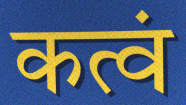
कत्वं